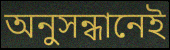
অনুসন্ধানেই